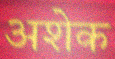
अशेक